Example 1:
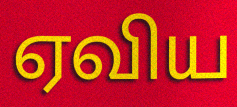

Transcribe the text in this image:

ஏவிய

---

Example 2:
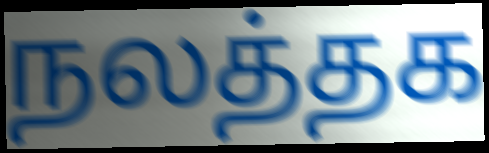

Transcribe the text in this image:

நலத்தக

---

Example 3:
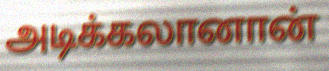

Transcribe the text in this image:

அடிக்கலானான்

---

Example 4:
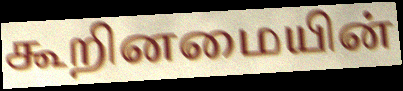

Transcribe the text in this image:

கூறினமையின்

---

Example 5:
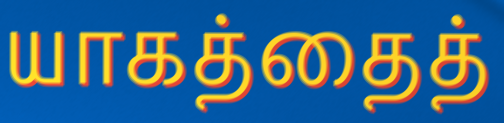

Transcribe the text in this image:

யாகத்தைத்